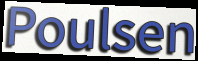
Poulsen